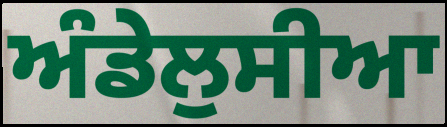
ਅੰਡੇਲੁਸੀਆ